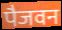
पैजवन